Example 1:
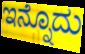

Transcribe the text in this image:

ಇನ್ನೊದು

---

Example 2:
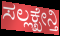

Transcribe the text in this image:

ಸಲ್ಲಕ್ಖೇನ್ತಿ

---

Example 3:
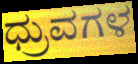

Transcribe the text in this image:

ಧ್ರುವಗಳ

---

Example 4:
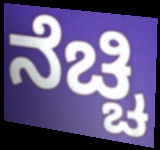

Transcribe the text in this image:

ನೆಚ್ಚಿ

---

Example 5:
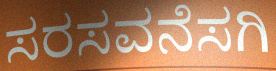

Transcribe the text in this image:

ಸರಸವನೆಸಗಿ